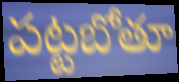
పట్టబోతూ